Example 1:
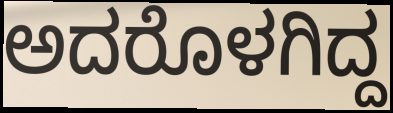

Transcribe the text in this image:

ಅದರೊಳಗಿದ್ದ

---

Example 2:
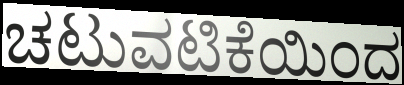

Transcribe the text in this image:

ಚಟುವಟಿಕೆಯಿಂದ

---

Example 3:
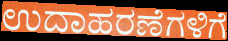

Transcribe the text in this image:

ಉದಾಹರಣೆಗಳಿಗೆ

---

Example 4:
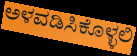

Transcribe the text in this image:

ಅಳವಡಿಸಿಕೊಳ್ಳಲಿ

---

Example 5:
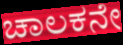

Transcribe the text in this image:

ಚಾಲಕನೇ